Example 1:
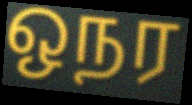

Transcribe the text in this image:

ஒநர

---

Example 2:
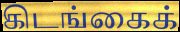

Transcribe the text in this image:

கிடங்கைக்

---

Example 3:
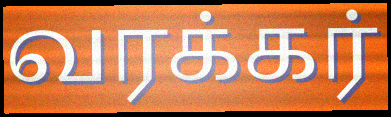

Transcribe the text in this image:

வரக்கர்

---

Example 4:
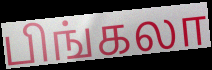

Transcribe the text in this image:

பிங்கலா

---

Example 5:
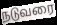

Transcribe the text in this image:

நடுவரை